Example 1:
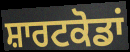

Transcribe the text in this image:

ਸ਼ਾਰਟਕੋਡਾਂ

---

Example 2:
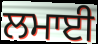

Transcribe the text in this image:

ਲਮਾਈ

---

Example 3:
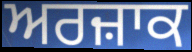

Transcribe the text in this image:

ਅਰਜ਼ਾਕ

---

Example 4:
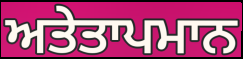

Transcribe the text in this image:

ਅਤੇਤਾਪਮਾਨ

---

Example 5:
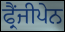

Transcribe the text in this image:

ਫ੍ਰੈਂਜੀਪੇਨ